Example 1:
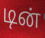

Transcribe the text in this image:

டின்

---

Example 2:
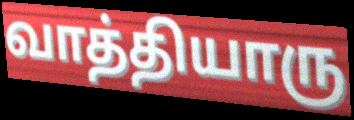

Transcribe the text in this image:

வாத்தியாரு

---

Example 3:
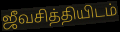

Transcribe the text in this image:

ஜீவசித்தியிடம்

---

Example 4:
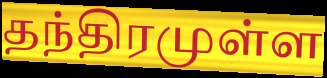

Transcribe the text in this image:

தந்திரமுள்ள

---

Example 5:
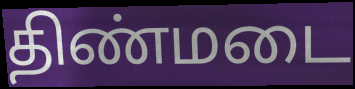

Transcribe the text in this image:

திண்மடை